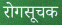
रोगसूचक